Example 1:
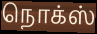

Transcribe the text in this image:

நொக்ஸ்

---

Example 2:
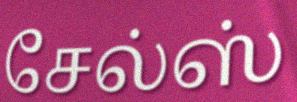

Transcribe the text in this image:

சேல்ஸ்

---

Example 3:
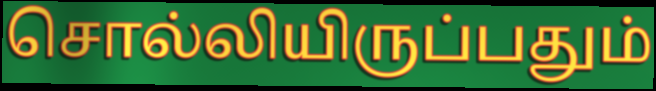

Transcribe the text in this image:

சொல்லியிருப்பதும்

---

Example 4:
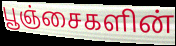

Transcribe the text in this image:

பூஞ்சைகளின்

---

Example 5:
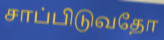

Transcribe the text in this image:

சாப்பிடுவதோ